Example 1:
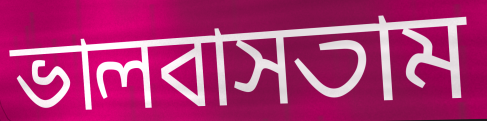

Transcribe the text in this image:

ভালবাসতাম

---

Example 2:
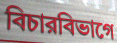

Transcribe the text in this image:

বিচারবিভাগে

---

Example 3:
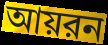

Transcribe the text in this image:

আয়রন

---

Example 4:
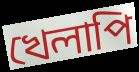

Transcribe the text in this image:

খেলাপি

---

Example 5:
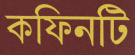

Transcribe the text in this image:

কফিনটি